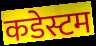
कडेस्टम